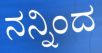
ನನ್ನಿಂದ